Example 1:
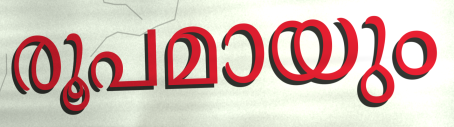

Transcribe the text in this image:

രൂപമായും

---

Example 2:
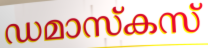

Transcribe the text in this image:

ഡമാസ്കസ്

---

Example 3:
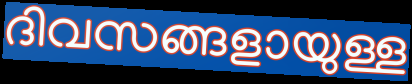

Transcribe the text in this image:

ദിവസങ്ങളായുള്ള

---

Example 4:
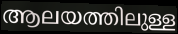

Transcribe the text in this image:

ആലയത്തിലുള്ള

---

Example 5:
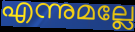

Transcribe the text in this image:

എന്നുമല്ലേ